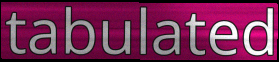
tabulated